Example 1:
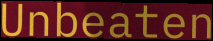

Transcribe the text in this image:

Unbeaten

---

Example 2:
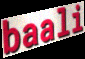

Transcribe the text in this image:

baali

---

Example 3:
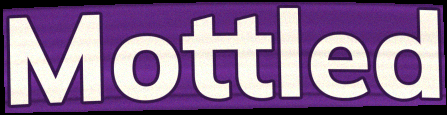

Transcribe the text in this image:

Mottled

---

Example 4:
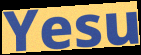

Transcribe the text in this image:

Yesu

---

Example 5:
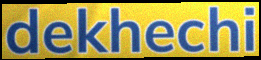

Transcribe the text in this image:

dekhechi